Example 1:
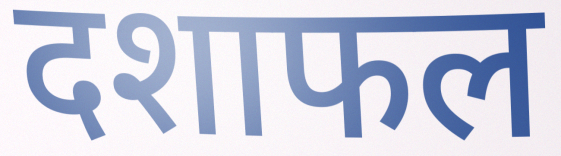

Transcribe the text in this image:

दशाफल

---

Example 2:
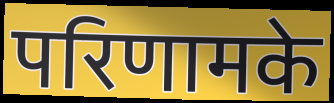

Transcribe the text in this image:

परिणामके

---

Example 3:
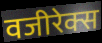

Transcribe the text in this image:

वजीरेक्स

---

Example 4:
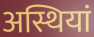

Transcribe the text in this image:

अस्थियां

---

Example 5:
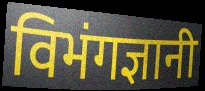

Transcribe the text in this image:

विभंगज्ञानी